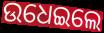
ଉଧେଇଲେ